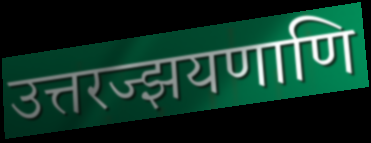
उत्तरज्झयणाणि